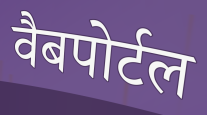
वैबपोर्टल